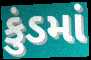
કુંડમાં